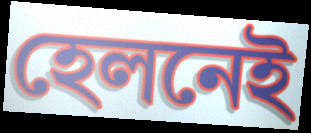
হেলনেই